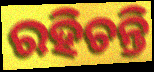
ରହିଚନ୍ତି